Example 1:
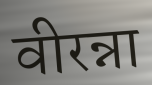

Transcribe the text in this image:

वीरन्ना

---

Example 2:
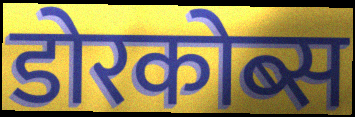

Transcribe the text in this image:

डोरकोब्स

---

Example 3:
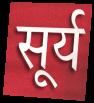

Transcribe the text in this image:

सूर्य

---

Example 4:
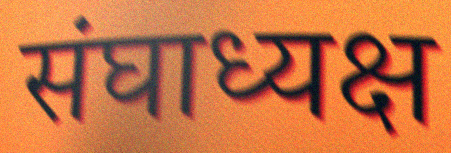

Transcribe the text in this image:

संघाध्यक्ष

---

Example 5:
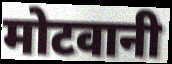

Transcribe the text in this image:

मोटवानी